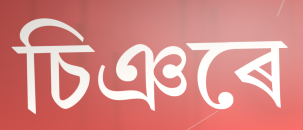
চিঞৰে